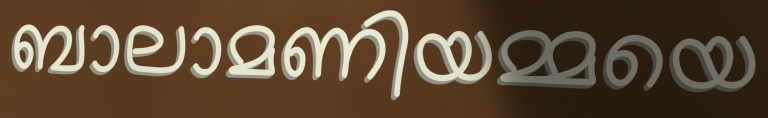
ബാലാമണിയമ്മയെ